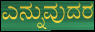
ಎನ್ನುವುದರ